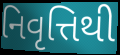
નિવૃત્તિથી